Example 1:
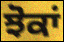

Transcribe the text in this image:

ਝੋਕਾਂ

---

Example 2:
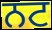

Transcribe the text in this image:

ਨਟ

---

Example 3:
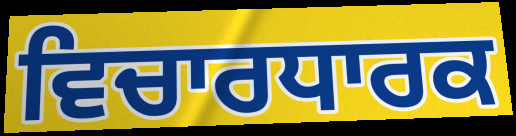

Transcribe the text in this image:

ਵਿਚਾਰਧਾਰਕ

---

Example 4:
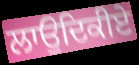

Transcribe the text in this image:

ਲਾਉਦਿਕੀਏ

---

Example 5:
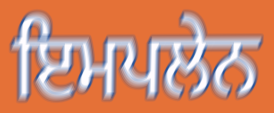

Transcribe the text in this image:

ਇਮਪਲੇਨ